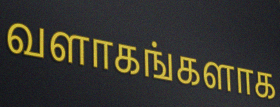
வளாகங்களாக